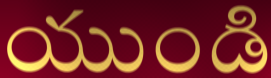
యుండి